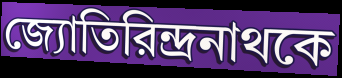
জ্যোতিরিন্দ্রনাথকে